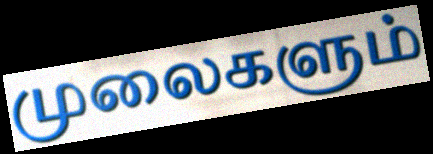
முலைகளும்